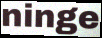
ninge